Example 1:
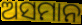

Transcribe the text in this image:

ଅସମାନ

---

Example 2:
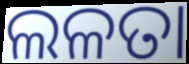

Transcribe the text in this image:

ଲଳତା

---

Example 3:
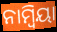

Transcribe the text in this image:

ନାମ୍ୱିୟା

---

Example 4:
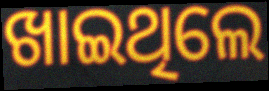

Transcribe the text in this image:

ଖାଇଥିଲେ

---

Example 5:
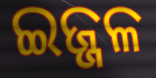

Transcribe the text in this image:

ଇଜ୍ଜଳ